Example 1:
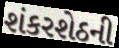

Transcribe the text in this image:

શંકરશેઠની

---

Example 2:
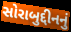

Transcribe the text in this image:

સોરાબુદ્દીનનું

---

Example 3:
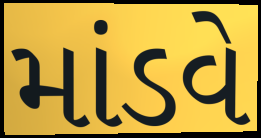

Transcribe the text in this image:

માંડવે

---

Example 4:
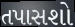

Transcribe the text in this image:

તપાસશો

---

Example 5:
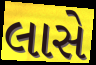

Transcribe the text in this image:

લાસે